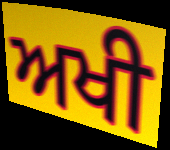
ਅਖੀ